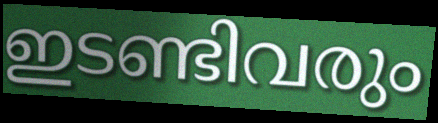
ഇടണ്ടിവരും